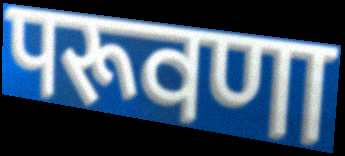
परूवणा